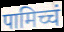
पामिच्चं